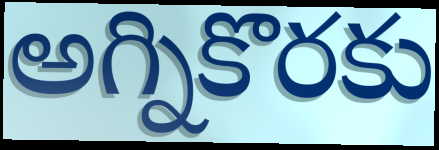
అగ్నికొరకు